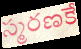
స్మరణకే